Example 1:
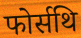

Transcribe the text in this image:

फोर्सथि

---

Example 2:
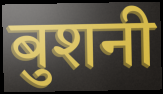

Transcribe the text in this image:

बुशनी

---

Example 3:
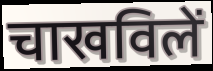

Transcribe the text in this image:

चाखविलें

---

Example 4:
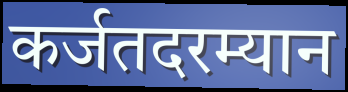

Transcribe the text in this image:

कर्जतदरम्यान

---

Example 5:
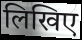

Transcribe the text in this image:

लिखिए